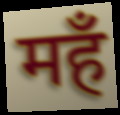
महँ